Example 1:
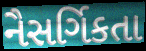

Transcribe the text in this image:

નૈસર્ગિકતા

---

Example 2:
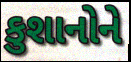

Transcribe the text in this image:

કુશાનોને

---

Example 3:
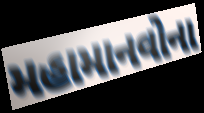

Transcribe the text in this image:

મહામાનવોના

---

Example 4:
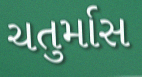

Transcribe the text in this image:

ચતુર્માસ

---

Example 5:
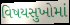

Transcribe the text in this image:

વિષયસુખોમાં